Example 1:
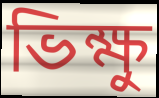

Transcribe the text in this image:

ভিক্ষু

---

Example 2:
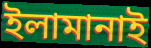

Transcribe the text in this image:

ইলামানাই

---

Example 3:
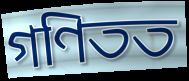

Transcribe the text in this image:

গণিতত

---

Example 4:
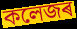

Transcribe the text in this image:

কলেজৰ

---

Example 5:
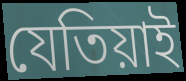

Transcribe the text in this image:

যেতিয়াই